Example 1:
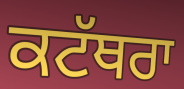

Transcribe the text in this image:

ਕਟੱਥਰਾ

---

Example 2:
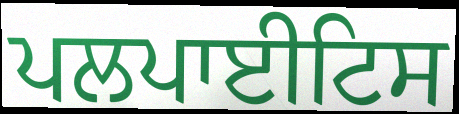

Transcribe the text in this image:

ਪਲਪਾਈਟਿਸ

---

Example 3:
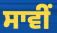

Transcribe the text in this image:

ਸਾਵੀਂ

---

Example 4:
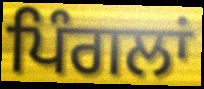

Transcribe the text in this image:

ਪਿੰਗਲਾਂ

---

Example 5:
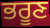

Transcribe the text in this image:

ਭਰੂਣ